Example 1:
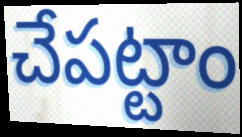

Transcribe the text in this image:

చేపట్టాం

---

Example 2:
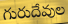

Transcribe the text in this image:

గురుదేవుల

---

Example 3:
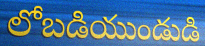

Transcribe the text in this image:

లోబడియుండుడి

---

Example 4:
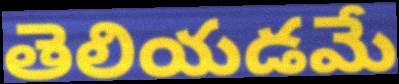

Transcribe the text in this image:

తెలియడమే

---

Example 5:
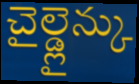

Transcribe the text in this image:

చైల్డ్లైన్కు